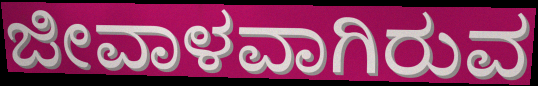
ಜೀವಾಳವಾಗಿರುವ